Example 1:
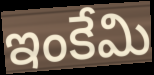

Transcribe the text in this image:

ఇంకేమి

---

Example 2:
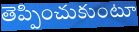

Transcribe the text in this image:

తెప్పించుకుంటూ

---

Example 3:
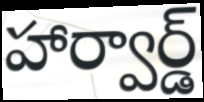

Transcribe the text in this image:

హార్వార్డ్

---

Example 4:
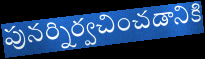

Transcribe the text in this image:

పునర్నిర్వచించడానికి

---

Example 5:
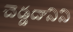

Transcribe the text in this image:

చెడ్డదానిని